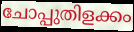
ചോപ്പുതിളക്കം